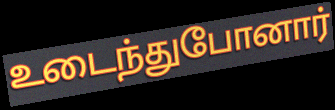
உடைந்துபோனார்